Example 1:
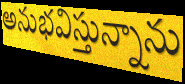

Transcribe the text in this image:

అనుభవిస్తున్నాను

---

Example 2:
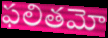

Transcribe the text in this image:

ఫలితమో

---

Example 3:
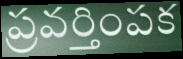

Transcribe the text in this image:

ప్రవర్తింపక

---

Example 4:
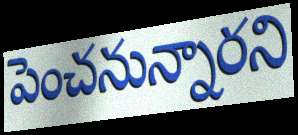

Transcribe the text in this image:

పెంచనున్నారని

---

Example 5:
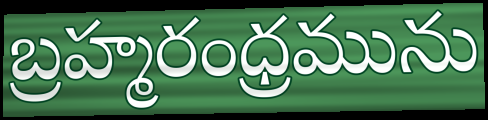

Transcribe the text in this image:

బ్రహ్మరంధ్రమును